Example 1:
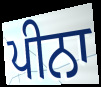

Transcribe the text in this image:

ਪੀਨਾ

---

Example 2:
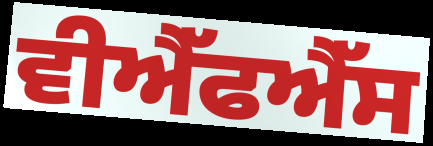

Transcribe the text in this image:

ਵੀਐੱਫਐੱਸ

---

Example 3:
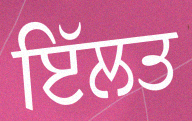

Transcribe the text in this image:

ਇੱਲਤ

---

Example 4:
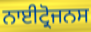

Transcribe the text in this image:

ਨਾਈਟ੍ਰੋਜਨਸ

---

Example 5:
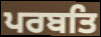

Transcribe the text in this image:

ਪਰਬਤਿ